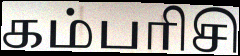
கம்பரிசி